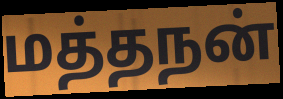
மத்தநன்